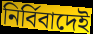
নির্বিবাদেই